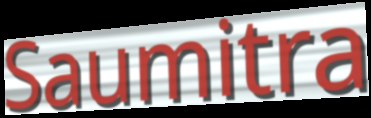
Saumitra